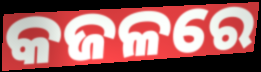
କଜଳରେ